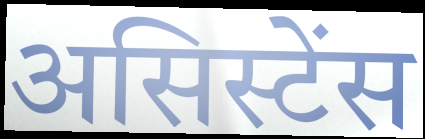
असिस्टेंस